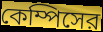
কেম্পিসের